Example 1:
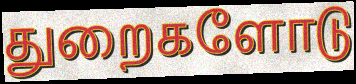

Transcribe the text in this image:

துறைகளோடு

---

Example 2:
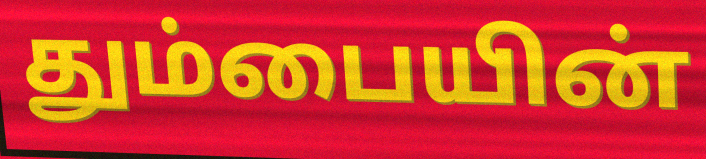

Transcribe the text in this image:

தும்பையின்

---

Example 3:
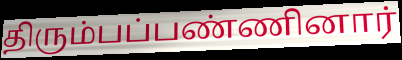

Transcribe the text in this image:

திரும்பப்பண்ணினார்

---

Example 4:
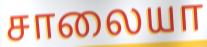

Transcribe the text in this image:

சாலையா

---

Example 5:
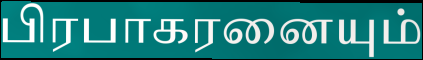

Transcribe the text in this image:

பிரபாகரனையும்